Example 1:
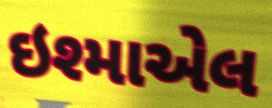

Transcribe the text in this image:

ઇશ્માએલ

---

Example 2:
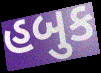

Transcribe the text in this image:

હબુક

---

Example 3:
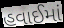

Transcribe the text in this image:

હવાઈમાં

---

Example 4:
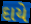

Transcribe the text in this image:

દાયે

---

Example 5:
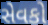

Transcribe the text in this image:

સેવકો